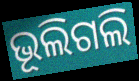
ଭୂଲିଗଲି